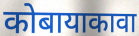
कोबायाकावा